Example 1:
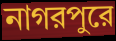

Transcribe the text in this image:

নাগরপুরে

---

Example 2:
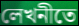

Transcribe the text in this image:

লেখনীতে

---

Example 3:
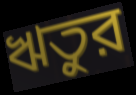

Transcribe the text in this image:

ঋতুর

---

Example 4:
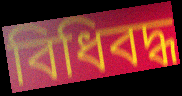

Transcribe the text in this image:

বিধিবদ্ধ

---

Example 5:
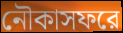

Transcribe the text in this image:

নৌকাসফরে